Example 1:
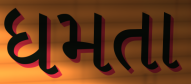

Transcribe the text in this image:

ધમતા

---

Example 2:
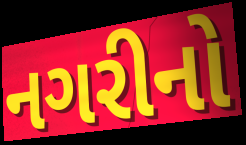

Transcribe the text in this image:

નગરીનો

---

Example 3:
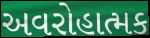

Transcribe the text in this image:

અવરોહાત્મક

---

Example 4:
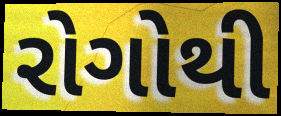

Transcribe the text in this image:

રોગોથી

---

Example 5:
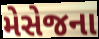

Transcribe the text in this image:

મેસેજના